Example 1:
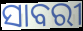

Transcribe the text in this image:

ସାବରୀ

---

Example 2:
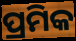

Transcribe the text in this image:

ପ୍ରମିକ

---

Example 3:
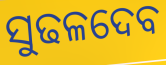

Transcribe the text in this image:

ସୁଢଳଦେବ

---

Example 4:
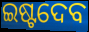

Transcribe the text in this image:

ଇଷ୍ଟଦେବ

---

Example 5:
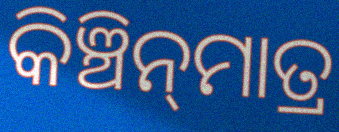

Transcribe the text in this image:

କିଞ୍ଚିନ୍‍ମାତ୍ର